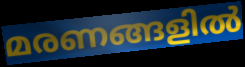
മരണങ്ങളിൽ